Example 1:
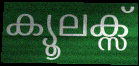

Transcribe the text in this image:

ക്യൂലക്സ്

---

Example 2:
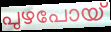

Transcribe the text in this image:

പുഴപോയ്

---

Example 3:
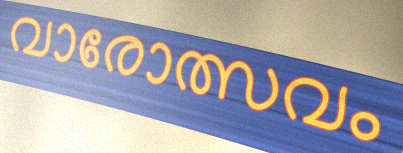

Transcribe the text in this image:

വാരോത്സവം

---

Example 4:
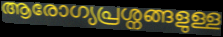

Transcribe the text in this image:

ആരോഗ്യപ്രശ്നങ്ങളുള്ള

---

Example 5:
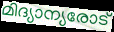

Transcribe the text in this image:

മിദ്യാന്യരോട്